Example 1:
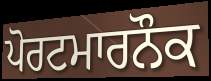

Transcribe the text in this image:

ਪੋਰਟਮਾਰਨੌਕ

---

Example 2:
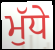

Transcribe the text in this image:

ਮੁੱਧੇ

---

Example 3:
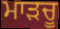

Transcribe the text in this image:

ਮਾੜਚੂ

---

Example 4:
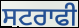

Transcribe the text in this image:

ਸਟਰਾਫੀ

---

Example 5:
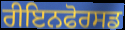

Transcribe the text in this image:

ਰੀਇਨਫੋਰਸਡ